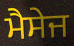
ਮੈਸੇਜ